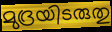
മുദ്രയിടരുതു